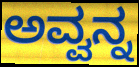
ಅವ್ವನ್ನ